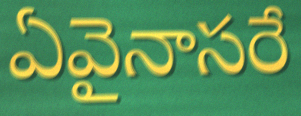
ఏవైనాసరే